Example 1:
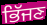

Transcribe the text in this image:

ਭਿੱਜਣ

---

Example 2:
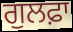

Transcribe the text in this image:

ਗੁਲਫ਼ਾ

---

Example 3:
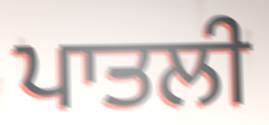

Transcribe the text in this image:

ਪਾਤਲੀ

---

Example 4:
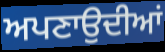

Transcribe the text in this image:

ਅਪਣਾਉਦੀਆਂ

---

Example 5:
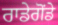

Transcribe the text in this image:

ਰਾਡੇਗੋਂਡੇ